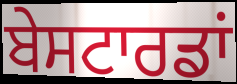
ਬੇਸਟਾਰਡਾਂ